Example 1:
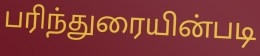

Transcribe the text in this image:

பரிந்துரையின்படி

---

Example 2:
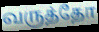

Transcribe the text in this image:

வருத்தோ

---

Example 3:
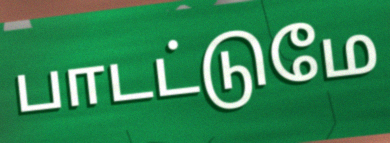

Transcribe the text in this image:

பாடட்டுமே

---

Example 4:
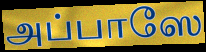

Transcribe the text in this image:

அப்பாஸே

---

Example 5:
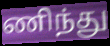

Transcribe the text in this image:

ணிந்து